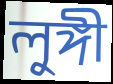
লুঙ্গী